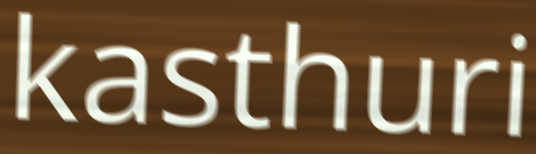
kasthuri